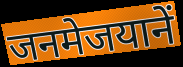
जनमेजयानें